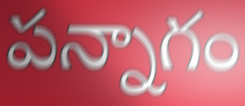
పన్నాగం